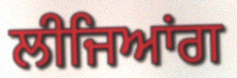
ਲੀਜਿਆਂਗ